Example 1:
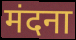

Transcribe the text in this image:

मंदना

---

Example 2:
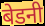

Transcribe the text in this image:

बेडनी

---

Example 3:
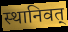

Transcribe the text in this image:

स्थानिवत्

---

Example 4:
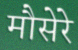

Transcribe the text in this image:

मौसेरे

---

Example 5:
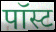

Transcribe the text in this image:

पॉस्ट